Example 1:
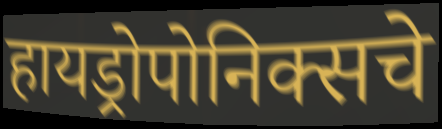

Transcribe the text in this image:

हायड्रोपोनिक्सचे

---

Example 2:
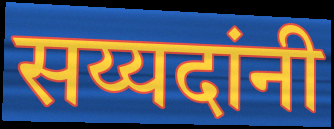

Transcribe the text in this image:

सय्यदांनी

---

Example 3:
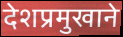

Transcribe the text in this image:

देशप्रमुखाने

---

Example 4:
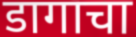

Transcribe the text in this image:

डागाचा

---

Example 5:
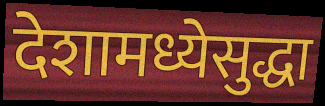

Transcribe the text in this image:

देशामध्येसुद्धा